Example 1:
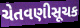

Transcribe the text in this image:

ચેતવણીસૂચક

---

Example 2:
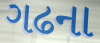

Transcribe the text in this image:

ગઢના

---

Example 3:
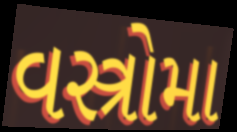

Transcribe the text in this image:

વસ્ત્રોમા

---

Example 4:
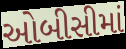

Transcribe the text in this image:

ઓબીસીમાં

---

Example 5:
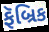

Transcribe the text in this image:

ફૅબ્રિક